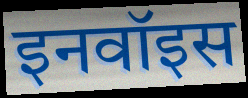
इनवॉइस